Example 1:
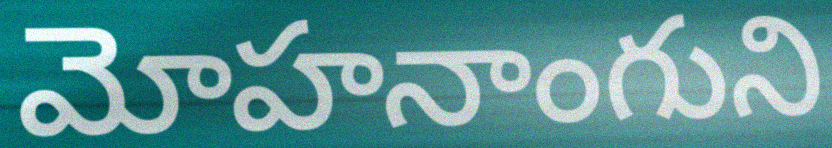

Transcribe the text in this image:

మోహనాంగుని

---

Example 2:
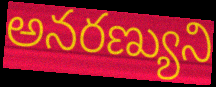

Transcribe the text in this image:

అనరణ్యుని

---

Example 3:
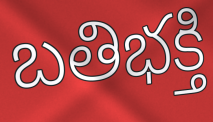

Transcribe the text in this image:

బతిభక్తి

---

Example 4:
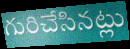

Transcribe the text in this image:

గురిచేసినట్లు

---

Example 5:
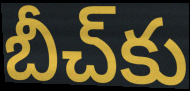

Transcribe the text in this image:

బీచ్‌కు